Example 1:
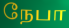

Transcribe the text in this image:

நேபா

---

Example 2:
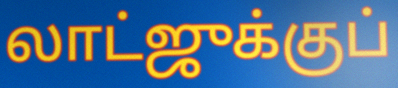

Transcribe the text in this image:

லாட்ஜுக்குப்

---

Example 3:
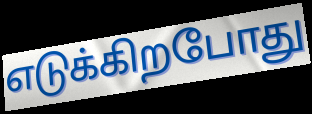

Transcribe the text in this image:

எடுக்கிறபோது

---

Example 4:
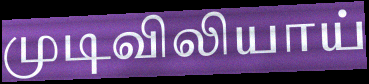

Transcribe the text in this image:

முடிவிலியாய்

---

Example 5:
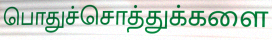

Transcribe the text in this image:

பொதுச்சொத்துக்களை